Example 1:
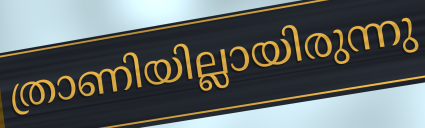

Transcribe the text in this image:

ത്രാണിയില്ലായിരുന്നു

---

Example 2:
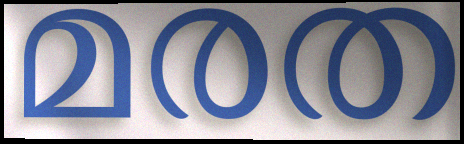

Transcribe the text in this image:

മരത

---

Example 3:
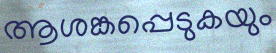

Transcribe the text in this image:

ആശങ്കപ്പെടുകയും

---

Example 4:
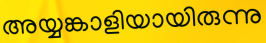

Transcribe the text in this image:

അയ്യങ്കാളിയായിരുന്നു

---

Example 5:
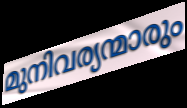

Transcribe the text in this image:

മുനിവര്യന്മാരും